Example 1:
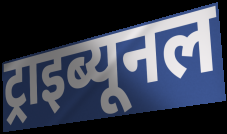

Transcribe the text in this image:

ट्राइब्यूनल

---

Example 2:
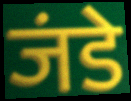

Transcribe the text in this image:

जंडे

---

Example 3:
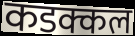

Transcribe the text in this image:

कडक्कल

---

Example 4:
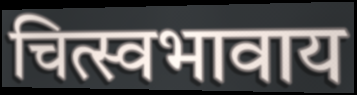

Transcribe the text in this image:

चित्स्वभावाय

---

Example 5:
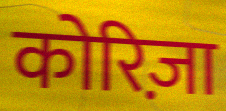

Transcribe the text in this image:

कोरिज़ा